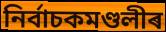
নিৰ্বাচকমণ্ডলীৰ